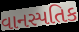
વાનસ્પતિક